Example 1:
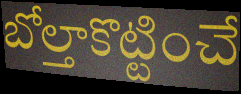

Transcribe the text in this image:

బోల్తాకొట్టించే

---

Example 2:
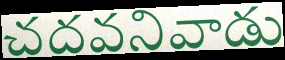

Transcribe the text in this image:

చదవనివాడు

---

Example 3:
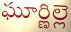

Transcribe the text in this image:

ఘూర్ణిల్లె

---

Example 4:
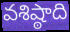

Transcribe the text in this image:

వశిష్ఠాది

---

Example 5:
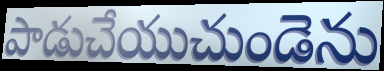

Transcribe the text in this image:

పాడుచేయుచుండెను